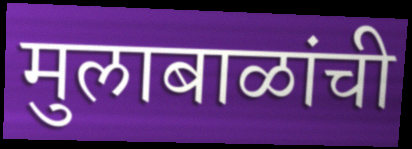
मुलाबाळांची